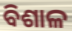
ବିଶାଳ